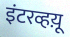
इंटरव्हय़ू